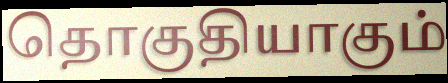
தொகுதியாகும்